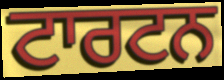
ਟਾਰਟਨ